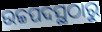
ଉଚ୍ଚପଦସ୍ଥଠାରୁ